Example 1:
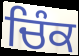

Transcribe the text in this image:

ਚਿੰਕ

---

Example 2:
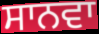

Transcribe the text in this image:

ਸਾਨਵਾ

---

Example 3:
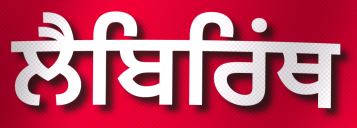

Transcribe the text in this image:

ਲੈਬਿਰਿਂਥ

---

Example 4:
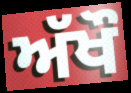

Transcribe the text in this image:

ਅੱਖੌ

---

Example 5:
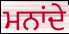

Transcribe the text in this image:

ਮਨਾਂਦੇ